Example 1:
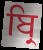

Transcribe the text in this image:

ਬ੍ਰਿ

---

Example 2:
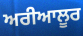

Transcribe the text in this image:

ਅਰੀਆਲੂਰ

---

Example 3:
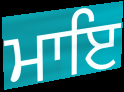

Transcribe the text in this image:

ਮਾਇ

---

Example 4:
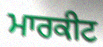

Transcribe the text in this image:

ਮਾਰਕੀਟ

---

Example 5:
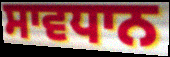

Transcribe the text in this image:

ਸਾਵਧਾਨ